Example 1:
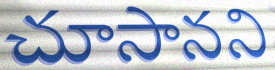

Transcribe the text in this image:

చూసానని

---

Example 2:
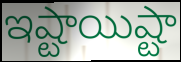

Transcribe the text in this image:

ఇష్టాయిష్టా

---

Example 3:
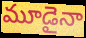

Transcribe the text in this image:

మూడైనా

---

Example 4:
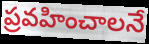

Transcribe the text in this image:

ప్రవహించాలనే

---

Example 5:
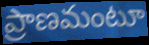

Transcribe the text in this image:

ప్రాణమంటూ